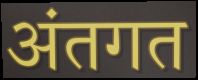
अंतगत